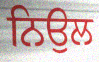
ਨਿਉਲ